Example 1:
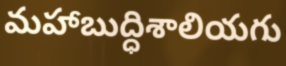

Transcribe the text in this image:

మహాబుద్ధిశాలియగు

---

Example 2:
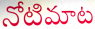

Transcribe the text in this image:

నోటిమాట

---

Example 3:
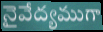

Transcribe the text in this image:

నైవేద్యముగా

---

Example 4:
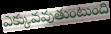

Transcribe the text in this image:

ఎక్కువవుతుంటుంది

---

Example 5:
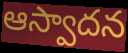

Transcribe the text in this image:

ఆస్వాదన